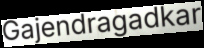
Gajendragadkar